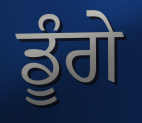
ਡੂੰਗੇ